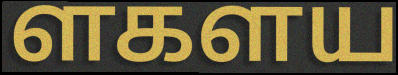
ளகளய